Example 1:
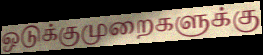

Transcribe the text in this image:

ஒடுக்குமுறைகளுக்கு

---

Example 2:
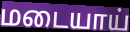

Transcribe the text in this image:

மடையாய்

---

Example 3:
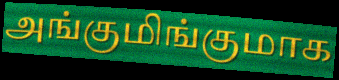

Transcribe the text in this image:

அங்குமிங்குமாக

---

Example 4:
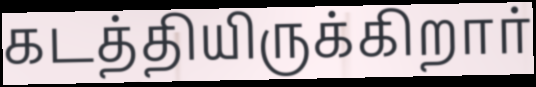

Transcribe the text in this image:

கடத்தியிருக்கிறார்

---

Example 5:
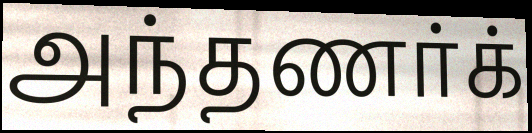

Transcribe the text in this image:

அந்தணர்க்